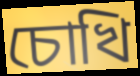
চোখি